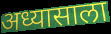
अध्यासाला